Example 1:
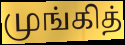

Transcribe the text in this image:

முங்கித்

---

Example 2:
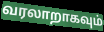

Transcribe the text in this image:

வரலாறாகவும்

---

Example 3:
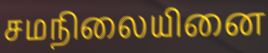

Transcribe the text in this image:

சமநிலையினை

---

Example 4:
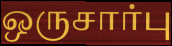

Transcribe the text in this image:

ஒருசார்பு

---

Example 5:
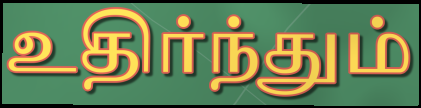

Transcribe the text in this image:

உதிர்ந்தும்